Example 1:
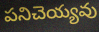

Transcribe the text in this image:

పనిచెయ్యవు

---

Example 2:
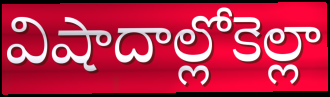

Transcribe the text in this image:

విషాదాల్లోకెల్లా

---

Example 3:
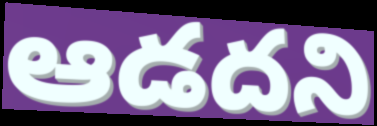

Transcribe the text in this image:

ఆడదని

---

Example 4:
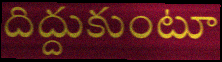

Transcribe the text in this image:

దిద్దుకుంటూ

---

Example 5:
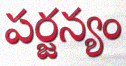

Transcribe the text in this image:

పర్జన్యం